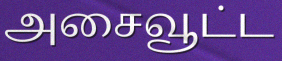
அசைவூட்ட